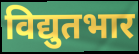
विद्युतभार